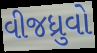
વીજધ્રુવો